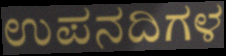
ಉಪನದಿಗಳ